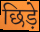
छिड़े